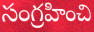
సంగ్రహించి